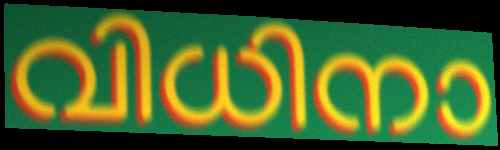
വിധിനാ